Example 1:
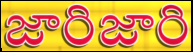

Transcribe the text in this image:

జారిజారి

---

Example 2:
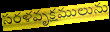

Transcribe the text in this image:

సరళవృక్షములును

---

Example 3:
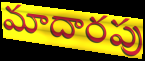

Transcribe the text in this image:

మాదారపు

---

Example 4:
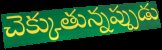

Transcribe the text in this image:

చెక్కుతున్నప్పుడు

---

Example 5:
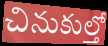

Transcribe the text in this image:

చినుకుల్తో